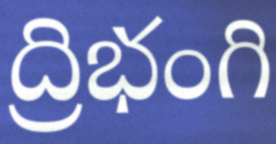
ద్రిభంగి